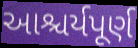
આશ્ચર્યપૂર્ણ